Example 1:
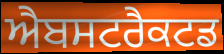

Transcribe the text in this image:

ਐਬਸਟਰੈਕਟਡ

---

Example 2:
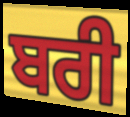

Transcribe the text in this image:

ਬਰੀ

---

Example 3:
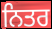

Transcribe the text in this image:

ਨਿਤਰ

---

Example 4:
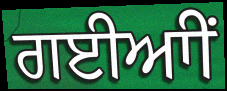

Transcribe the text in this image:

ਗਈਆੀਂ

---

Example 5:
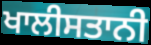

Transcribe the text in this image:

ਖਾਲੀਸਤਾਨੀ